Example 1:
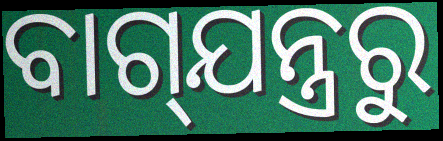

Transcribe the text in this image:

ବାଗ୍‌ଯନ୍ତ୍ରରୁ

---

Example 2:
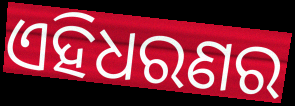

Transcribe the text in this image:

ଏହିଧରଣର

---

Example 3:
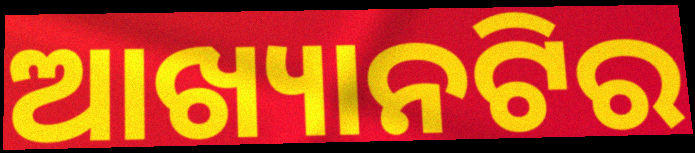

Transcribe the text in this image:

ଆଖ୍ୟାନଟିର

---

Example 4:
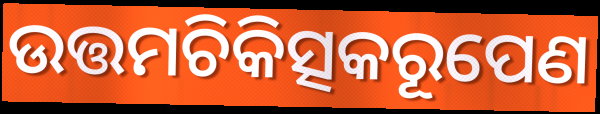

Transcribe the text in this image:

ଉତ୍ତମଚିକିତ୍ସକରୂପେଣ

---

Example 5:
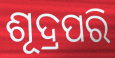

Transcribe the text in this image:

ଶୂଦ୍ରପରି